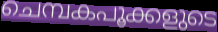
ചെമ്പകപൂക്കളുടെ